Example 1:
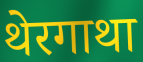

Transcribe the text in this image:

थेरगाथा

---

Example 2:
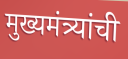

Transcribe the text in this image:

मुख्यमंत्र्यांची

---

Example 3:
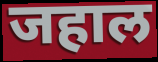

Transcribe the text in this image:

जहाल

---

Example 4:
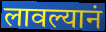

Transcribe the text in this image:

लावल्यानं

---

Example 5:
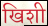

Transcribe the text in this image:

खिशी